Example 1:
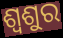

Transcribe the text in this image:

ଶ୍ଵଶୁର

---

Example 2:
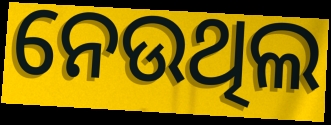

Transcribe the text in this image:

ନେଉଥିଲ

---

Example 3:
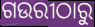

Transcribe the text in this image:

ଗଉରୀଠାରୁ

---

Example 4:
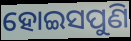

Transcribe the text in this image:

ହୋଇସପୁଣି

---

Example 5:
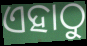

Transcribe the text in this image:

ଏହାଠୁ